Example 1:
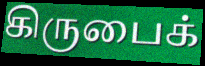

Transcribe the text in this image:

கிருபைக்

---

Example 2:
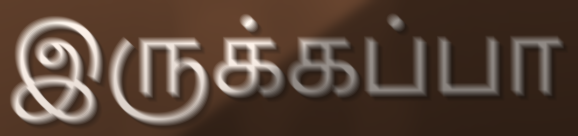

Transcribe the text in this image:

இருக்கப்பா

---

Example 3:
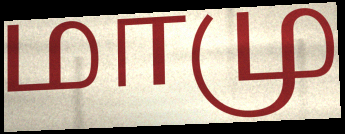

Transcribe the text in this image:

மாமு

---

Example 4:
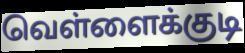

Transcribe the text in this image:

வெள்ளைக்குடி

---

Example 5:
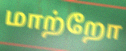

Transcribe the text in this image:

மாற்றோ